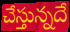
చేస్తున్నదే